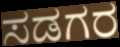
ಸಡಗರ